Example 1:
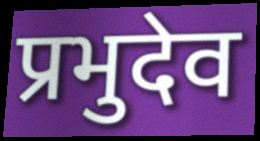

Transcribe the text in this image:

प्रभुदेव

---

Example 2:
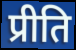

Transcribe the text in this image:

प्रीति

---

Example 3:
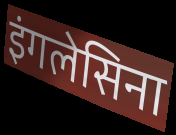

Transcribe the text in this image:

इंगलेसिना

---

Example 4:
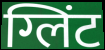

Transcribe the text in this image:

ग्लिंट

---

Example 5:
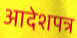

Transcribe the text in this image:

आदेशपत्र